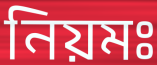
নিয়মঃ